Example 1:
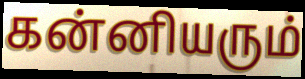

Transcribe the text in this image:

கன்னியரும்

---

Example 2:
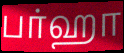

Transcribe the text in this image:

பர்ஹா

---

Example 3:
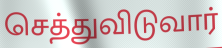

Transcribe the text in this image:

செத்துவிடுவார்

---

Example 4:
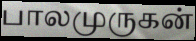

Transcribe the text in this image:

பாலமுருகன்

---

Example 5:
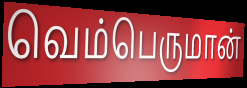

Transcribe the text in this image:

வெம்பெருமான்